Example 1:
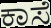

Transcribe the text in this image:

ಕಾಸೆ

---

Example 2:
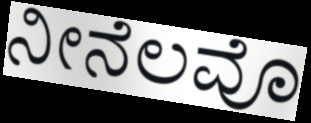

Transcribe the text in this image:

ನೀನೆಲವೊ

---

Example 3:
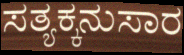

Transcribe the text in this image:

ಸತ್ಯಕ್ಕನುಸಾರ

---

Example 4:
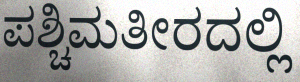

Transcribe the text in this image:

ಪಶ್ಚಿಮತೀರದಲ್ಲಿ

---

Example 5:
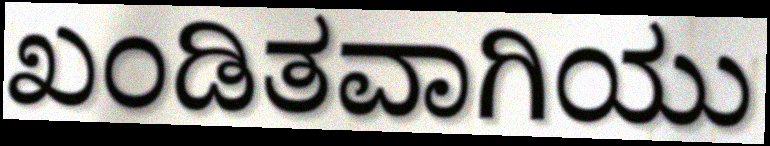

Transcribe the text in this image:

ಖಂಡಿತವಾಗಿಯು